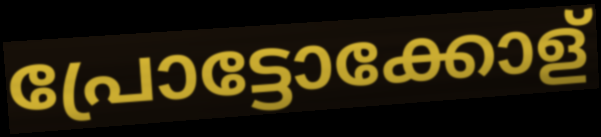
പ്രോട്ടോക്കോള്